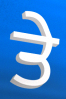
ਤੇ